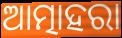
ଆତ୍ମାହରା